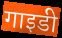
गाइडी